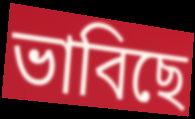
ভাবিছে